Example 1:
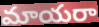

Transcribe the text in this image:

మాయరా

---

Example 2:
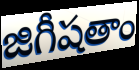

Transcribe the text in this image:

జిగీషతాం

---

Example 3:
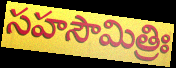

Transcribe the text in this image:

సహసౌమిత్రిః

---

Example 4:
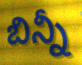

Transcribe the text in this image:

బిన్నీ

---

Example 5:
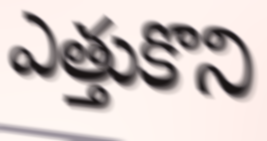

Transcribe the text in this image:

ఎత్తుకొని